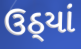
ઉઠ્યાં